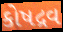
કોષદ્રવ